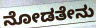
ನೋಡತೇನು